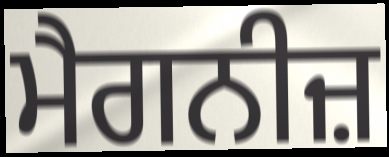
ਮੈਗਨੀਜ਼